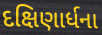
દક્ષિણાર્ધના